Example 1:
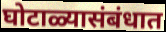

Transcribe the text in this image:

घोटाळ्यासंबंधात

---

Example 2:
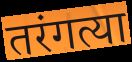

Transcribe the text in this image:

तरंगत्या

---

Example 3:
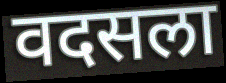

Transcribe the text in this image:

वदसला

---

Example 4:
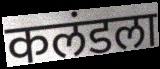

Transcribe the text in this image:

कलंडला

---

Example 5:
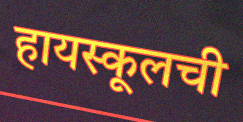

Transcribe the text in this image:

हायस्कूलची